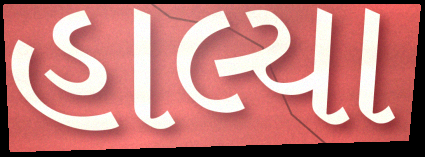
હાલ્યા